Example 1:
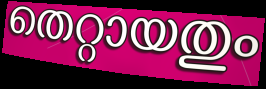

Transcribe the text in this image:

തെറ്റായതും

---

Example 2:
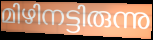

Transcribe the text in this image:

മിഴിനട്ടിരുന്നു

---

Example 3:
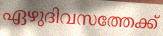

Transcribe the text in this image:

ഏഴുദിവസത്തേക്ക്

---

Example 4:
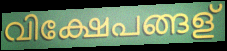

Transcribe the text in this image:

വിക്ഷേപങ്ങള്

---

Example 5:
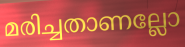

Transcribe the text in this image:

മരിച്ചതാണല്ലോ